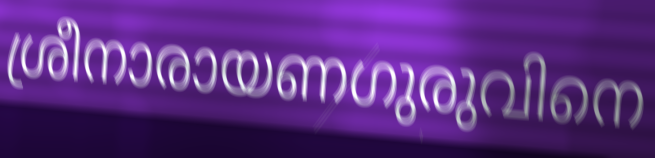
ശ്രീനാരായണഗുരുവിനെ